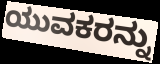
ಯುವಕರನ್ನು